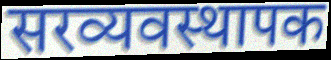
सरव्यवस्थापक